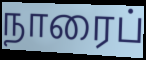
நாரைப்